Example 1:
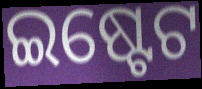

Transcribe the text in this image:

ଇଷ୍ଟେଟ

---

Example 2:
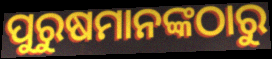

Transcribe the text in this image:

ପୁରୁଷମାନଙ୍କଠାରୁ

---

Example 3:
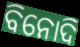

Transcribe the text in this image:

ବିନୋଦି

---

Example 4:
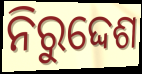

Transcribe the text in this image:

ନିରୁଦ୍ଦେଶ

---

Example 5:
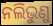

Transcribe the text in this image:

ନଲିଭୁଣୁ